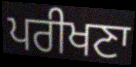
ਪਰੀਖਣਾ